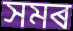
সমৰ